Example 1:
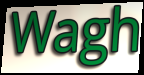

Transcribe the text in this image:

Wagh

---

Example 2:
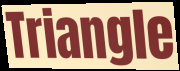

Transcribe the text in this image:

Triangle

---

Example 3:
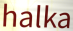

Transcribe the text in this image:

halka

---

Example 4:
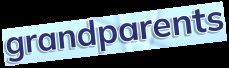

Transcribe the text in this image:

grandparents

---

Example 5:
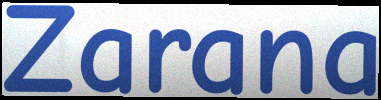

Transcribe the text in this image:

Zarana